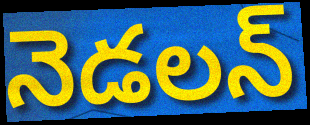
నెడలన్